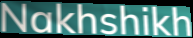
Nakhshikh